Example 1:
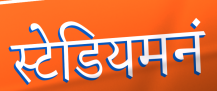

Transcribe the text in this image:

स्टेडियमनं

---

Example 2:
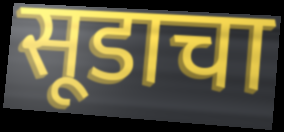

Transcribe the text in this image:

सूडाचा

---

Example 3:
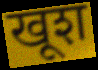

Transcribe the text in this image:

खूश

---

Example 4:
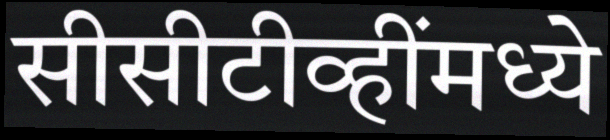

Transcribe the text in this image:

सीसीटीव्हींमध्ये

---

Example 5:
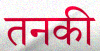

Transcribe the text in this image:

तनकी